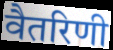
वैतरिणी